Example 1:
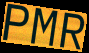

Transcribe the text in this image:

PMR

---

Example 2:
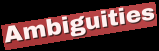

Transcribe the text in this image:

Ambiguities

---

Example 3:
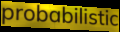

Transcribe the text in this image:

probabilistic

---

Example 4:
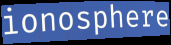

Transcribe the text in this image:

ionosphere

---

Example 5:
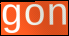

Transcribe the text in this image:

gon